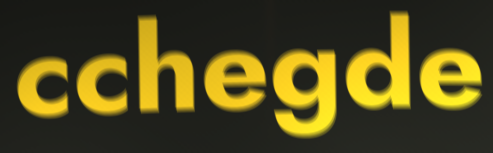
cchegde